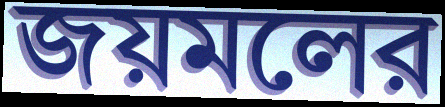
জয়মলের